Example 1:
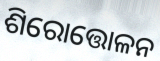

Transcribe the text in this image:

ଶିରୋତ୍ତୋଳନ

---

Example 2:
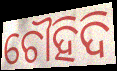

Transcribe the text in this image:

ଚୌହିଦି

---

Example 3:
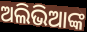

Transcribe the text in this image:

ଅଲିଭିଆଙ୍କ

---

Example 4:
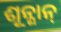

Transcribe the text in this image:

ଶୂନ୍ଶାନ୍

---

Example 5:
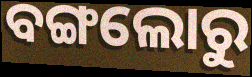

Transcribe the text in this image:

ବଙ୍ଗଲୋରୁ